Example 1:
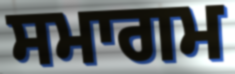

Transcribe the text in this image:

ਸਮਾਗਮ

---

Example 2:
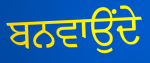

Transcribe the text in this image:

ਬਨਵਾਉਂਦੇ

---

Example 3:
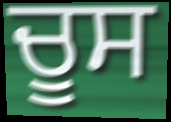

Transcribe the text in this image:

ਚੂਸ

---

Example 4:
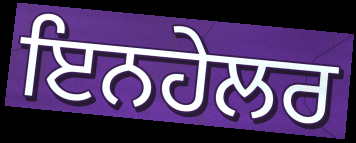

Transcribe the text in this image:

ਇਨਹੇਲਰ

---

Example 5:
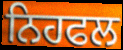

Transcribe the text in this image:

ਨਿਹਫਲ